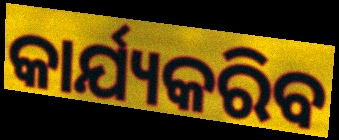
କାର୍ଯ୍ୟକରିବ